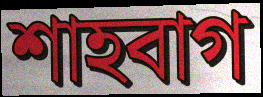
শাহবাগ